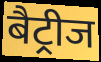
बैट्रीज